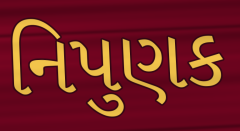
નિપુણક